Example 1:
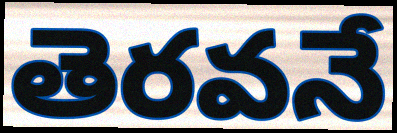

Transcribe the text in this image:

తెరవనే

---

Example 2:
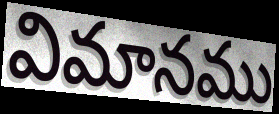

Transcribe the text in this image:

విమానము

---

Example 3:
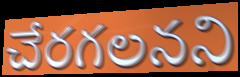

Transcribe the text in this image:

చేరగలనని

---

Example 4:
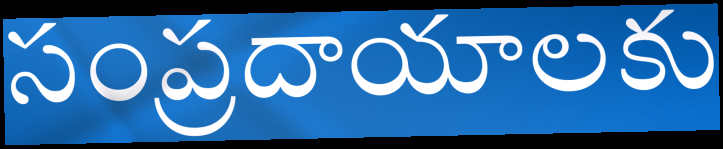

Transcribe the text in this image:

సంప్రదాయాలకు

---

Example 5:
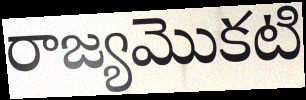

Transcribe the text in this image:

రాజ్యమొకటి